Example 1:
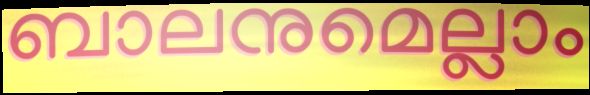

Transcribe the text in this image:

ബാലനുമെല്ലാം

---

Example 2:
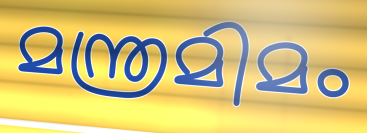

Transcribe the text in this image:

മന്ത്രമിമം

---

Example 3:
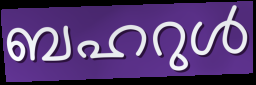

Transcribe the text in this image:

ബഹറുൾ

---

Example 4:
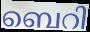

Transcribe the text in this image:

ബെറി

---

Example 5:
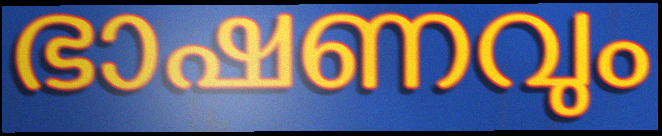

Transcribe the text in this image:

ഭാഷണവും